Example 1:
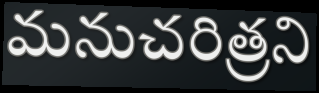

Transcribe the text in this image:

మనుచరిత్రని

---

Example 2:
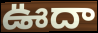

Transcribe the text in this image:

ఊదా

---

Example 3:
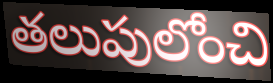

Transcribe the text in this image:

తలుపులోంచి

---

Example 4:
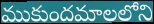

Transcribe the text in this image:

ముకుందమాలలోని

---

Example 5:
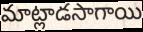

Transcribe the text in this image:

మాట్లాడసాగాయి